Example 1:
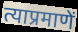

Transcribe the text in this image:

त्याप्रमाणें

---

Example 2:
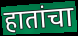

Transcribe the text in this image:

हातांचा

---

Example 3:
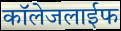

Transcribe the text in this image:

कॉलेजलाईफ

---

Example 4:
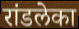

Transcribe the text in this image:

रांडलेका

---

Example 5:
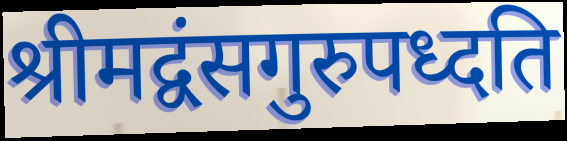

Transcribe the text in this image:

श्रीमद्वंसगुरुपध्दति